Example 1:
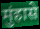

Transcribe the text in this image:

मुंहासे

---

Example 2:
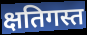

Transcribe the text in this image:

क्षतिगस्त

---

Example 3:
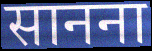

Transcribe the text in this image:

सानना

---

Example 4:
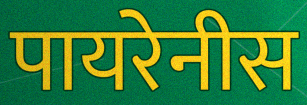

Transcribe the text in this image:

पायरेनीस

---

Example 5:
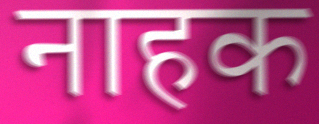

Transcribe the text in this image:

नाहक